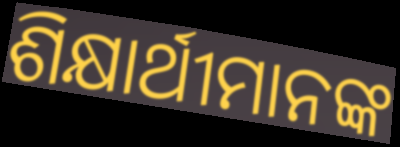
ଶିକ୍ଷାର୍ଥୀମାନଙ୍କ